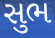
સુભ